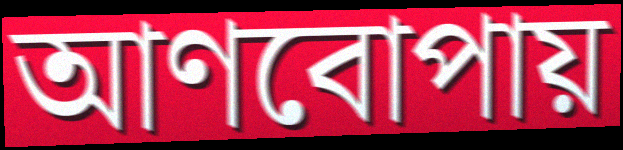
আণবোপায়